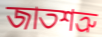
জাতশত্রু